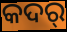
କଦର୍